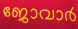
ജോവാർ